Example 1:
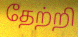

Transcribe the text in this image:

தேற்றி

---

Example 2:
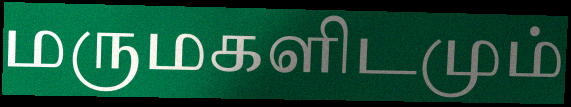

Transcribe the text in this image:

மருமகளிடமும்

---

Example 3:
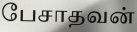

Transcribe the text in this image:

பேசாதவன்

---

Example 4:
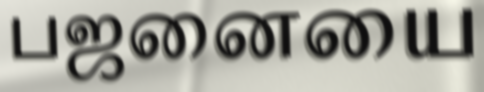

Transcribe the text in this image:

பஜனையை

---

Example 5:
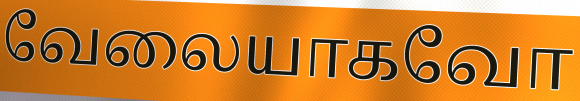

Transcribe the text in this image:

வேலையாகவோ